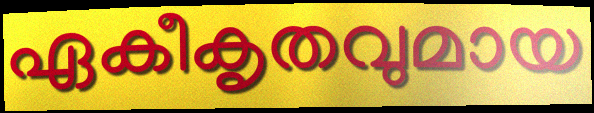
ഏകീകൃതവുമായ